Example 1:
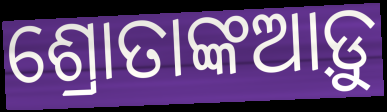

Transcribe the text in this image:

ଶ୍ରୋତାଙ୍କଆଡ଼ୁ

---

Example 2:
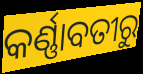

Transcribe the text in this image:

କର୍ଣ୍ଣାବତୀରୁ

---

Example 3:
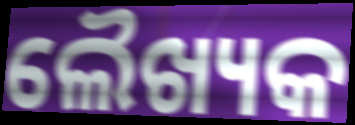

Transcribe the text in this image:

ଲୈଖ୍ୟକ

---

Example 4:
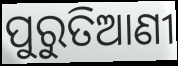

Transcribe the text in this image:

ପୁରୁତିଆଣୀ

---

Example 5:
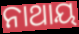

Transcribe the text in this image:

ନାଥାୟ